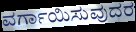
ವರ್ಗಾಯಿಸುವುದರ